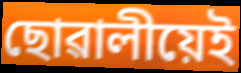
ছোৱালীয়েই